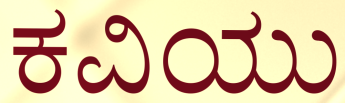
ಕವಿಯು